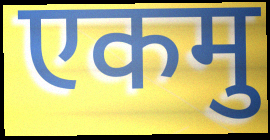
एकमु